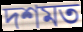
দশমত